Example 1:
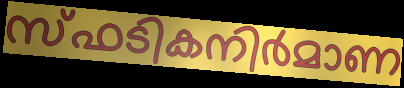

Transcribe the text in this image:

സ്ഫടികനിർമാണ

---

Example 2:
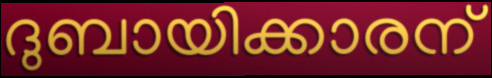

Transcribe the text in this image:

ദുബായിക്കാരന്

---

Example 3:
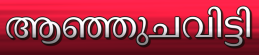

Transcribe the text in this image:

ആഞ്ഞുചവിട്ടി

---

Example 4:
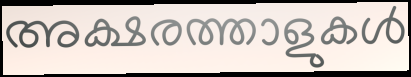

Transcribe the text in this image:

അക്ഷരത്താളുകൾ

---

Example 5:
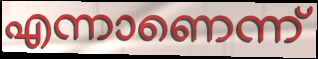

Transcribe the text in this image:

എന്നാണെന്ന്